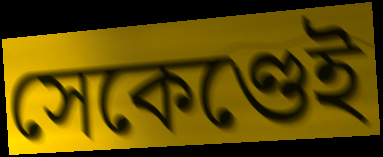
সেকেণ্ডেই